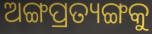
ଅଙ୍ଗପ୍ରତ୍ୟଙ୍ଗକୁ